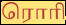
ரொரி